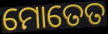
ମୋତେତ